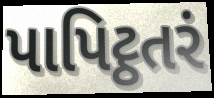
પાપિટ્ઠતરં